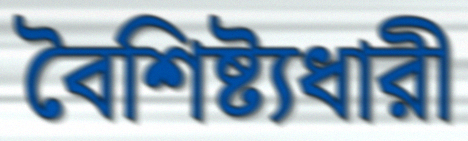
বৈশিষ্ট্যধারী